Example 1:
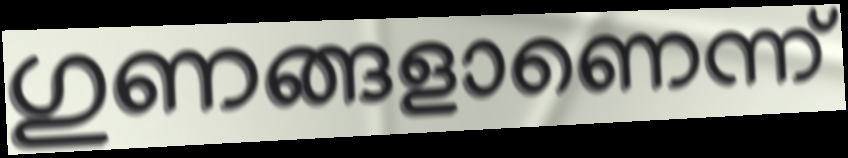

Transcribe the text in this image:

ഗുണങ്ങളാണെന്ന്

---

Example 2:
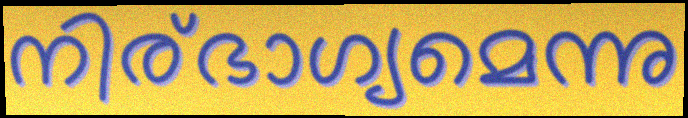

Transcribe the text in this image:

നിര്ഭാഗ്യമെന്നു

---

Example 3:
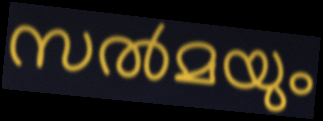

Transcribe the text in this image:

സൽമയും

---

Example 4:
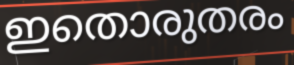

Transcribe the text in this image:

ഇതൊരുതരം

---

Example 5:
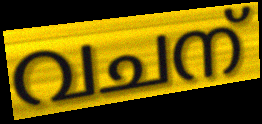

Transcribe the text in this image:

വചന്